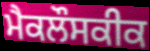
ਮੈਕਲੌਸਕੀਕ